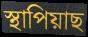
স্থাপিয়াছ